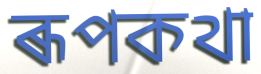
ৰূপকথা